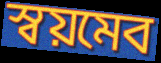
স্বয়মেব